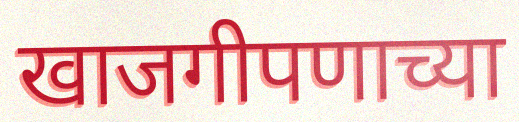
खाजगीपणाच्या